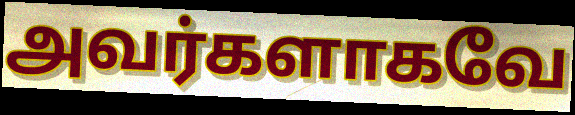
அவர்களாகவே